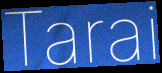
Tarai